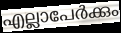
എല്ലാപേർക്കും